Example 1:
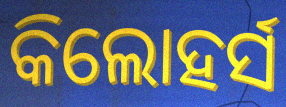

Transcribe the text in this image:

କିଲୋହର୍ସ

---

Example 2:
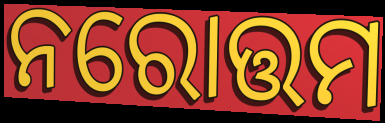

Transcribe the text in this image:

ନରୋତ୍ତମ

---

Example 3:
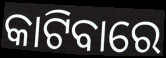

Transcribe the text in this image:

କାଟିବାରେ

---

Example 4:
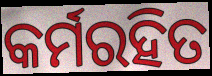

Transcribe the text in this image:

କର୍ମରହିତ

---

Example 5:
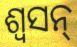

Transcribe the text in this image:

ଶ୍ୱସନ୍